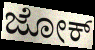
ಜೋಕ್